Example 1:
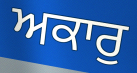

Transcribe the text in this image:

ਅਕਾਰੁ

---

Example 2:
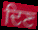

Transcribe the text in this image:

ਦਿਣ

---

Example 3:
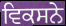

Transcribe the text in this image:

ਵਿਕਸਨੇ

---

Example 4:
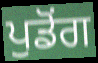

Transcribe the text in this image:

ਪੁਡੋਂਗ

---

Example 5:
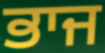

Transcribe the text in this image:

ਭਾਜ